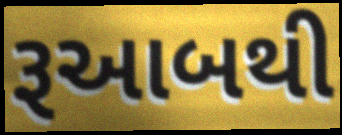
રૂઆબથી